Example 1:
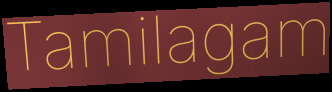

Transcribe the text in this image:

Tamilagam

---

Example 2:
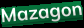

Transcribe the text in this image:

Mazagon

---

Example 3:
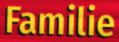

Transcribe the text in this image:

Familie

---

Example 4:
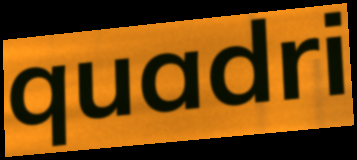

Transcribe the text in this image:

quadri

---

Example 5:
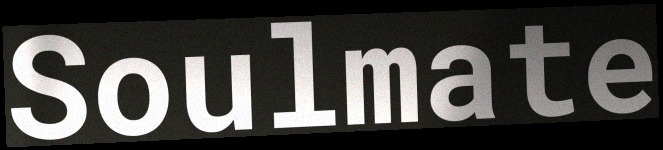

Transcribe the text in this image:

Soulmate